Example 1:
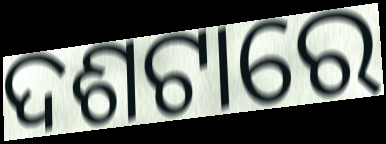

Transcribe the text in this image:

ଦଶଟାରେ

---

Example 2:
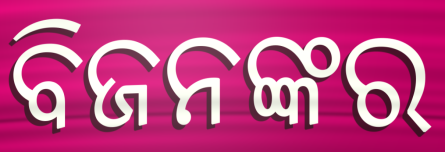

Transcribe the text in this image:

ବିଜନଙ୍କର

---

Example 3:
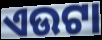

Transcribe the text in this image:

ଏଉଟା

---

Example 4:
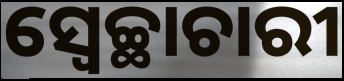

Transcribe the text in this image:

ସ୍ଵେଚ୍ଛାଚାରୀ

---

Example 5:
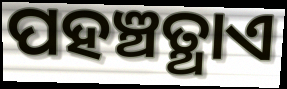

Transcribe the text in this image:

ପହଞ୍ଚତ୍ଥାଏ